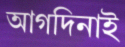
আগদিনাই